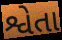
શ્વેતા